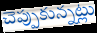
చెప్పుకున్నట్లు